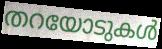
തറയോടുകൾ